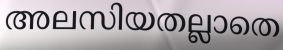
അലസിയതല്ലാതെ